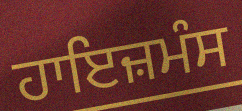
ਹਾਇਜ਼ਮੰਸ